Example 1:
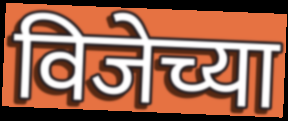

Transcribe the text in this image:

विजेच्या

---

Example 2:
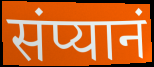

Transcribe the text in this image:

संप्यानं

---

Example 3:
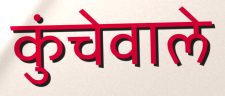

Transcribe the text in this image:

कुंचेवाले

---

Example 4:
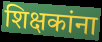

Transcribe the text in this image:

शिक्षकांना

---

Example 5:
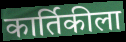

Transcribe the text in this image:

कार्तिकीला